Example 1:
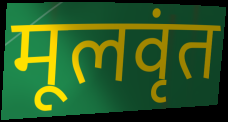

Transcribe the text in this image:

मूलवृंत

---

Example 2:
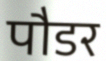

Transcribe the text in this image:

पौडर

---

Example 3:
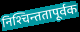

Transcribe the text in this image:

निश्चिन्ततापूर्वक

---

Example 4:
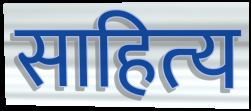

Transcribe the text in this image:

साहित्‍य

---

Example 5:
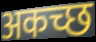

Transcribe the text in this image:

अकच्छ